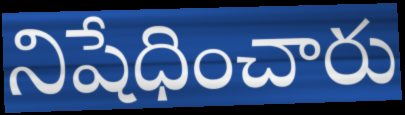
నిషేధించారు